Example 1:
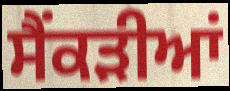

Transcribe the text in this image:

ਸੈਂਕੜੀਆਂ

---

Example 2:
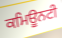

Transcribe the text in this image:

ਕਮਿਊਨਟੀ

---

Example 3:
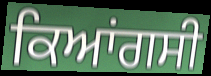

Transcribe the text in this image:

ਕਿਆਂਗਸੀ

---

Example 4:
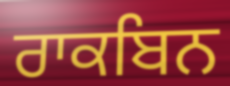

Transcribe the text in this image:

ਰਾਕਬਿਨ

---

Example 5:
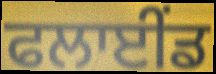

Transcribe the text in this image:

ਫਲਾਈਂਡ